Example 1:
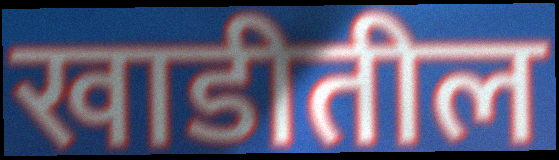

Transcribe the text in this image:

खाडीतील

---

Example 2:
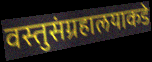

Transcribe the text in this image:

वस्तुसंग्रहालयाकडे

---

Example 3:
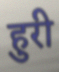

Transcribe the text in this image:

हुरी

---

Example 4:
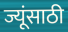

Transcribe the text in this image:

ज्यूंसाठी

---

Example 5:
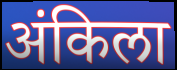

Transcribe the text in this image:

अंकिला